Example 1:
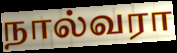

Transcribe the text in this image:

நால்வரா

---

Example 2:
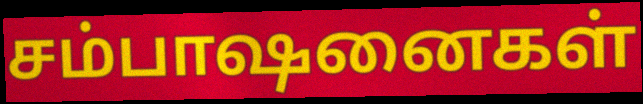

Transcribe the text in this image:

சம்பாஷனைகள்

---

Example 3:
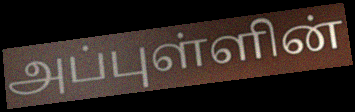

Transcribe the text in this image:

அப்புள்ளின்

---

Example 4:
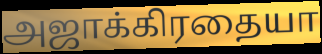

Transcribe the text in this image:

அஜாக்கிரதையா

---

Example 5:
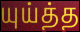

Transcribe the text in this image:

யுய்த்த